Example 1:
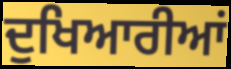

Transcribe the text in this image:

ਦੁਖਿਆਰੀਆਂ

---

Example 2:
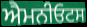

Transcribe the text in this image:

ਐਮਨੀਓਟਸ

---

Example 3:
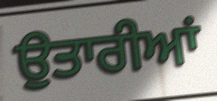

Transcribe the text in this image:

ਉਤਾਰੀਆਂ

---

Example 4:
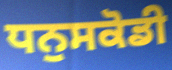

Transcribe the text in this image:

ਧਨੁਸਕੋਡੀ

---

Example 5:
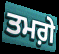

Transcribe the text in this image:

ਤਮਗ਼ੇ